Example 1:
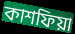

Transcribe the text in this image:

কাশফিয়া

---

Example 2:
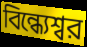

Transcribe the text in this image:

বিন্ধ্যেশ্বর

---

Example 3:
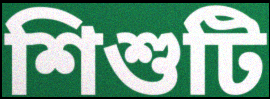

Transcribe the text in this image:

শিশুটি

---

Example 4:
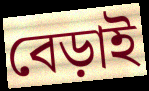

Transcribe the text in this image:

বেড়াই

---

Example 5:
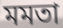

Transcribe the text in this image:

মমতা